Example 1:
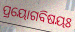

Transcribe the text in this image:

ପ୍ରୟୋଗବିଷୟଃ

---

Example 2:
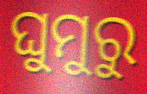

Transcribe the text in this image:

ଘୁମୁରୁ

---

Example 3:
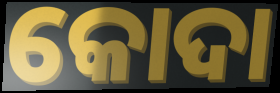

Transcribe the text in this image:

କୋଦା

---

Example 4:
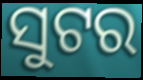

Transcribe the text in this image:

ସୁଟର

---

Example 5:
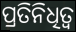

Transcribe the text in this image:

ପ୍ରତିନିଧିତ୍ୱ